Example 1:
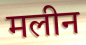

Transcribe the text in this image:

मलीन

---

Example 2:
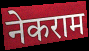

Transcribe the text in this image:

नेकराम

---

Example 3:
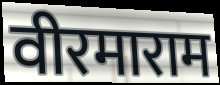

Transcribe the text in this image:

वीरमाराम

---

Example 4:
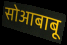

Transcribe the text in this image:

सोआबाबू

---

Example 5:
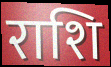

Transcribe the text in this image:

राशि